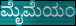
ಮೈಮೆಯಂ